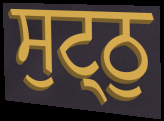
ਸੁਟ੍ਠੁ